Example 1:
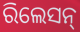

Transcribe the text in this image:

ରିଲେସନ୍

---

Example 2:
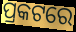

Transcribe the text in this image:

ପ୍ରକଟରେ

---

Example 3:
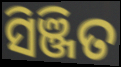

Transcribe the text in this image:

ସିଞ୍ଜିତ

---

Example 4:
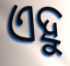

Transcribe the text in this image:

ଏହୁ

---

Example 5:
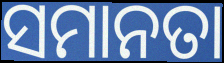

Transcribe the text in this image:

ସମାନତା